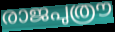
രാജപുത്രൗ